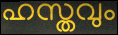
ഹസ്തവും